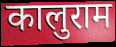
कालुराम